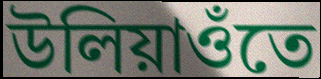
উলিয়াওঁতে